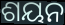
ଶୟନ